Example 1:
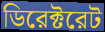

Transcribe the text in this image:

ডিরেক্টরেট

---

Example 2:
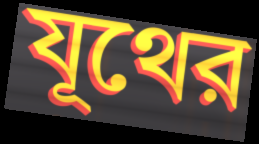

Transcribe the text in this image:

যূথের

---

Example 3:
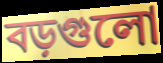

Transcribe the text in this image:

বড়গুলো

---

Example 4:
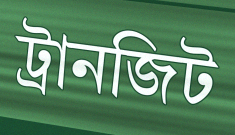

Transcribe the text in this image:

ট্রানজিট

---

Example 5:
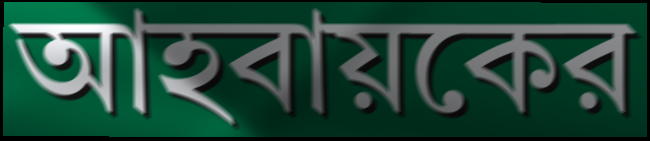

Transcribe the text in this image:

আহবায়কের